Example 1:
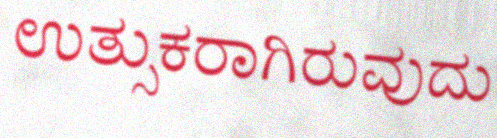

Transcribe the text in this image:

ಉತ್ಸುಕರಾಗಿರುವುದು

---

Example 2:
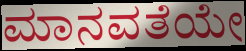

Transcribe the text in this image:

ಮಾನವತೆಯೇ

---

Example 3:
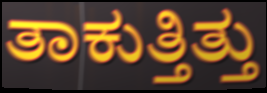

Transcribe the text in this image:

ತಾಕುತ್ತಿತ್ತು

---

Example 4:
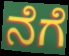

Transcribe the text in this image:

ನೆಗೆ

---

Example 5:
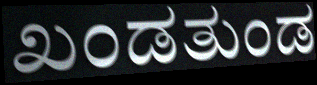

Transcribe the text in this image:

ಖಂಡತುಂಡ